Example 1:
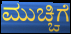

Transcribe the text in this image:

ಮುಚ್ಚಿಗೆ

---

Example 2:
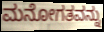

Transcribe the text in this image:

ಮನೋಗತವನ್ನು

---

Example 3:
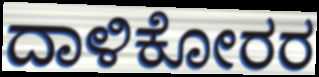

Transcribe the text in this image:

ದಾಳಿಕೋರರ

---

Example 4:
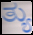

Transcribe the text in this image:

ತ್ಯು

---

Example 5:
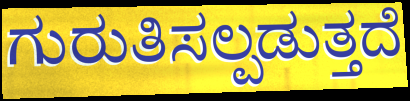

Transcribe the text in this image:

ಗುರುತಿಸಲ್ಪಡುತ್ತದೆ